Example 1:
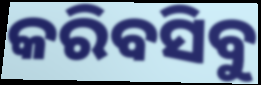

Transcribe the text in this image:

କରିବସିବୁ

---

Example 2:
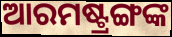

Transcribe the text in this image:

ଆରମଷ୍ଟ୍ରଙ୍ଗଙ୍କ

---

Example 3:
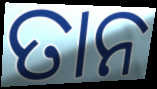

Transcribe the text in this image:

ତାନ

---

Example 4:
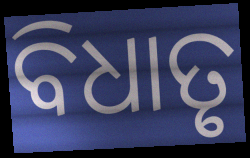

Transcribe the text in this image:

ବିଧାତୃ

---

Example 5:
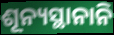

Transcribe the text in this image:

ଶୂନ୍ୟସ୍ଥାନାନି